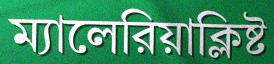
ম্যালেরিয়াক্লিষ্ট